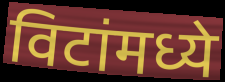
विटांमध्ये